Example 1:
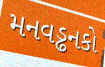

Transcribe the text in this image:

મનવડ્ઢનકો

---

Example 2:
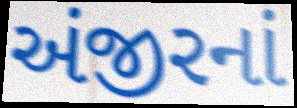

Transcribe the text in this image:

અંજીરનાં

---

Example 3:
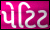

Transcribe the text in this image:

પેટિટ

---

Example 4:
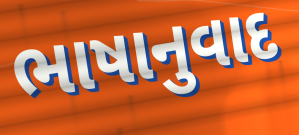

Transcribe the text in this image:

ભાષાનુવાદ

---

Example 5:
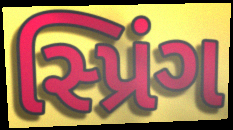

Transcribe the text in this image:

સ્પ્રિંગ